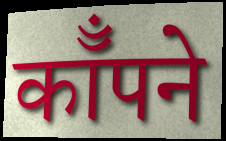
कॉँपने